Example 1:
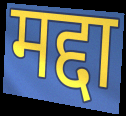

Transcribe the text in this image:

मद्दा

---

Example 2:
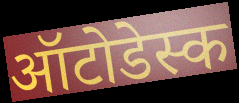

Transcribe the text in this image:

ऑटोडेस्क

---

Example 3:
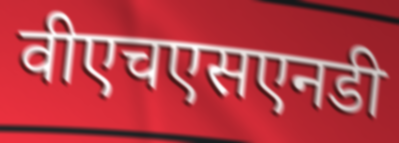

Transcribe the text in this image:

वीएचएसएनडी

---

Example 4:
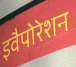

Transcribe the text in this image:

इवैपोरेशन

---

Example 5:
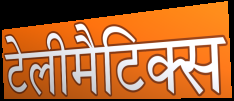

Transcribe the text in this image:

टेलीमैटिक्स